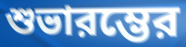
শুভারম্ভের